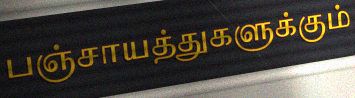
பஞ்சாயத்துகளுக்கும்